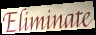
Eliminate